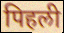
पिहली